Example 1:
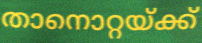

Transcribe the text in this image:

താനൊറ്റയ്ക്ക്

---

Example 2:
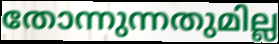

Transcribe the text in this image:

തോന്നുന്നതുമില്ല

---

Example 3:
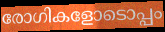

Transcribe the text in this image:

രോഗികളോടൊപ്പം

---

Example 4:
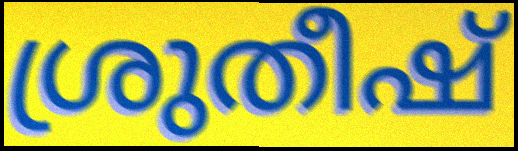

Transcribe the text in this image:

ശ്രുതീഷ്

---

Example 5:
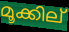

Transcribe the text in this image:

മൂക്കില്